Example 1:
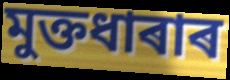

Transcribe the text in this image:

মুক্তধাৰাৰ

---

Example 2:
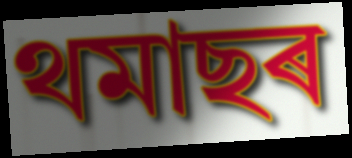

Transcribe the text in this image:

থমাছৰ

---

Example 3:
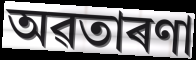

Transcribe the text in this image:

অৱতাৰণা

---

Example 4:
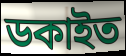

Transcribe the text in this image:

ডকাইত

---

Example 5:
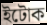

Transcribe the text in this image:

ইটোক